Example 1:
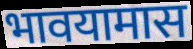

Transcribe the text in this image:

भावयामास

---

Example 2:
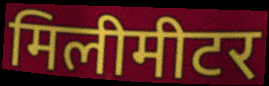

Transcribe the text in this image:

मिलीमीटर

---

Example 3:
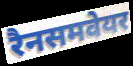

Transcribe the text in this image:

रैनसमवेयर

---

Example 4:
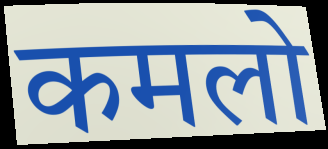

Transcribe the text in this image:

कमलो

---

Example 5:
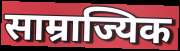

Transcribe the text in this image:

साम्राज्यिक